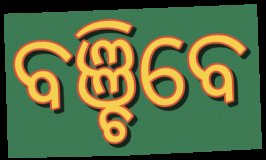
ବଞ୍ଚିବେ